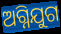
ଅଗ୍ନିଯୁଗ